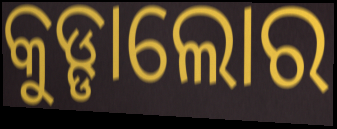
କୁଡ୍ଡାଲୋର